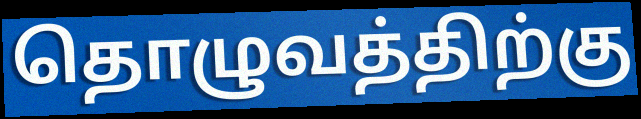
தொழுவத்திற்கு